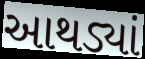
આથડ્યાં